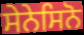
ਸੇਨੇਸਿਨੋ